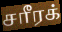
சரீரக்